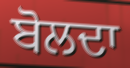
ਬੋਲਦਾ